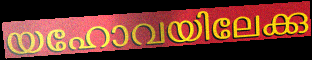
യഹോവയിലേക്കു